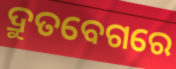
ଦ୍ରୁତବେଗରେ